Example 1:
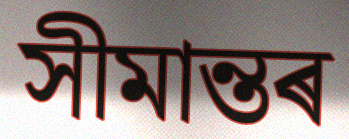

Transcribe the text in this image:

সীমান্তৰ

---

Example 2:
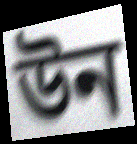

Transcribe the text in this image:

উন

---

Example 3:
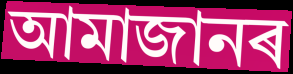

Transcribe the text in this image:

আমাজানৰ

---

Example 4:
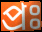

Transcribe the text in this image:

প্ৰঃ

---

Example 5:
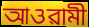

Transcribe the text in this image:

আওৱামী